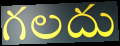
గలదు